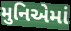
મુનિએમાં